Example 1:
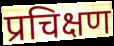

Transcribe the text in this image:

प्रचिक्षण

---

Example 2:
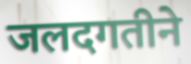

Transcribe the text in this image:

जलदगतीने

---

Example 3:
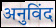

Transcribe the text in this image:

अनुविंद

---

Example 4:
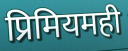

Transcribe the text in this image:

प्रिमियमही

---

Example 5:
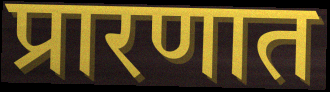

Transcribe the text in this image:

प्रारणात